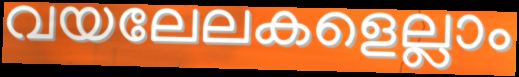
വയലേലകളെല്ലാം